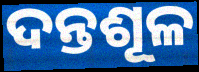
ଦନ୍ତଶୂଳ